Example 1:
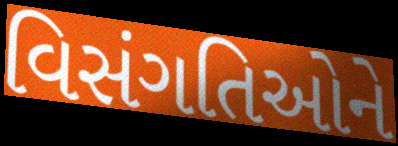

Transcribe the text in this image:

વિસંગતિઓને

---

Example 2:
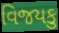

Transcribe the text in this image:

વિજયકુ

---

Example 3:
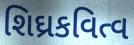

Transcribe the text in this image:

શિઘ્રકવિત્વ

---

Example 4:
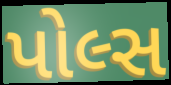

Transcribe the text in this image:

પોલ્સ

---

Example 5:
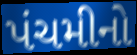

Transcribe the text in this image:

પંચમીનો